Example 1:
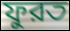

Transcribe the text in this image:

ফুরত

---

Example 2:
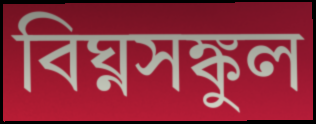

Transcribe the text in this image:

বিঘ্নসঙ্কুল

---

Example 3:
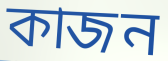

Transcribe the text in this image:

কাজন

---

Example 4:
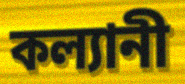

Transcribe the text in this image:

কল্যানী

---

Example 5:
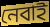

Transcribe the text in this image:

নেবাই